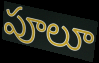
పూలూ